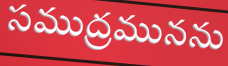
సముద్రమునను